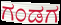
ಗಂಡಗ